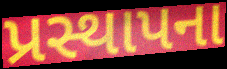
પ્રસ્થાપના